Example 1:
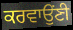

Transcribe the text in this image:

ਕਰਵਾਉਂਣੀ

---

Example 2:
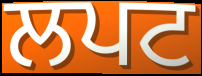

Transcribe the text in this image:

ਲਪਟ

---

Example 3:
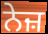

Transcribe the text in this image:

ਨੇਜ਼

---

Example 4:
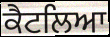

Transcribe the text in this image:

ਕੈਟਲਿਆ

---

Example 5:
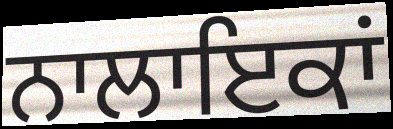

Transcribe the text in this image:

ਨਾਲਾਇਕਾਂ